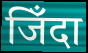
जिँदा